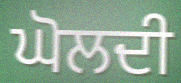
ਘੋਲਦੀ